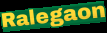
Ralegaon